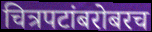
चित्रपटांबरोबरच